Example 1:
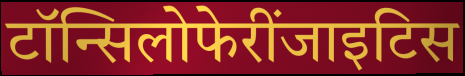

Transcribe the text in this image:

टॉन्सिलोफेरींजाइटिस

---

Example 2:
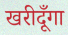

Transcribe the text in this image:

खरीदूँगा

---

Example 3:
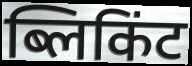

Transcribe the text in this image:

ब्लिकिंट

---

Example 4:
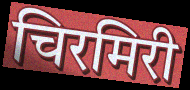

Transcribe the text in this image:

चिरमिरी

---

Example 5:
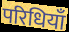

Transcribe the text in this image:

परिधियाँ